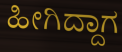
ಹೀಗಿದ್ದಾಗ